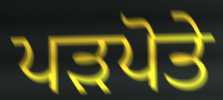
ਪੜਪੋਤੇ